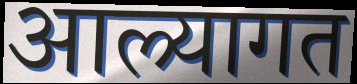
आल्यागत